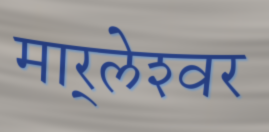
मार्लेश्वर